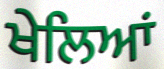
ਖੇਲਿਆਂ